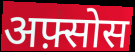
अफ़्सोस